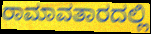
ರಾಮಾವತಾರದಲ್ಲಿ